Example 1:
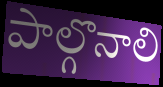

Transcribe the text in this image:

పాల్గొనాలి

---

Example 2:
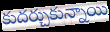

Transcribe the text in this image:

కుదర్చుకున్నాయి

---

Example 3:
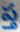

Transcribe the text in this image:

ప్త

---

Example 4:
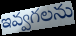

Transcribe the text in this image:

ఇవ్వగలను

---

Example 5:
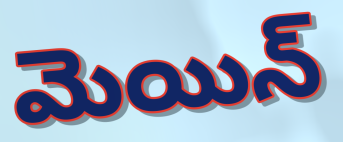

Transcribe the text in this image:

మెయిన్